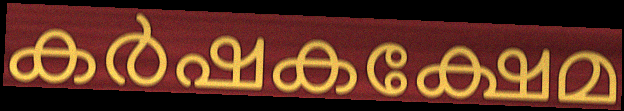
കർഷകക്ഷേമ